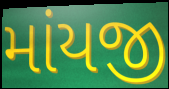
માંયજી